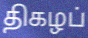
திகழப்